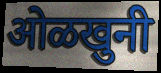
ओळखुनी